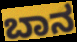
ಬಾನ